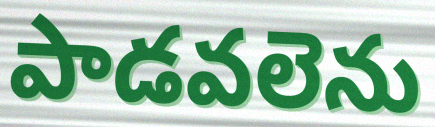
పాడవలెను